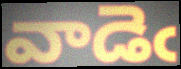
వాడెఁ